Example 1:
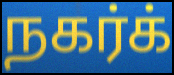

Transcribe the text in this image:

நகர்க்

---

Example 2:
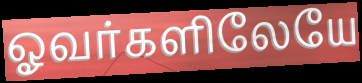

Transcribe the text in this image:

ஓவர்களிலேயே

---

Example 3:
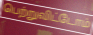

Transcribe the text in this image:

பெற்றுவிட்டோம்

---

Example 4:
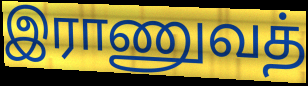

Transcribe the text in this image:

இராணுவத்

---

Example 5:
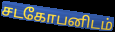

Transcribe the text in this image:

சடகோபனிடம்